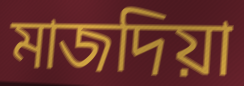
মাজদিয়া